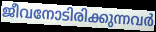
ജീവനോടിരിക്കുന്നവർ